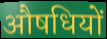
औषधियों